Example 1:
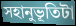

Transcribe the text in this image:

সহানুভূতিটা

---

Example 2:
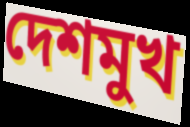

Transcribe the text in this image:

দেশমুখ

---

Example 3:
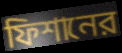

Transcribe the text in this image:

ফিশানের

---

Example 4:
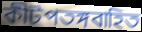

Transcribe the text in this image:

কীটপতঙ্গবাহিত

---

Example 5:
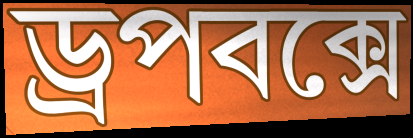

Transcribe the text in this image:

ড্রপবক্সে